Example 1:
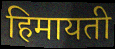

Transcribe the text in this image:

हिमायती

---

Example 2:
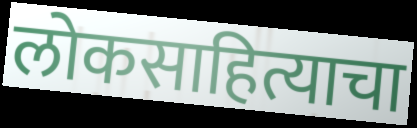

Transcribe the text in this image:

लोकसाहित्याचा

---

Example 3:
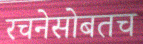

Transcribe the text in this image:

रचनेसोबतच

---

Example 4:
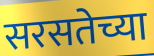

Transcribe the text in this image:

सरसतेच्या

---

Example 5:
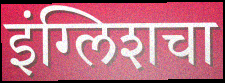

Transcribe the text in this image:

इंग्लिशचा